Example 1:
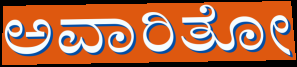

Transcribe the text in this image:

ಅವಾರಿತೋ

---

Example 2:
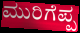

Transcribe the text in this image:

ಮುರಿಗೆಪ್ಪ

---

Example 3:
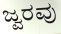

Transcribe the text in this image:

ಜ್ವರವು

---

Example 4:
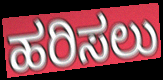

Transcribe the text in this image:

ಹರಿಸಲು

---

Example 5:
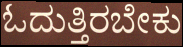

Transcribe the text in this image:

ಓದುತ್ತಿರಬೇಕು